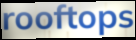
rooftops